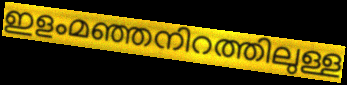
ഇളംമഞ്ഞനിറത്തിലുള്ള